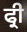
ਫ੍ਰੀ